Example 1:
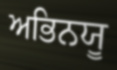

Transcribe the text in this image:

ਅਭਿਨਯੂ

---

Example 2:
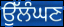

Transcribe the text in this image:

ਉੱਲੰਘਣ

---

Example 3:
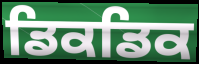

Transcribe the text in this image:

ਡਿਕਡਿਕ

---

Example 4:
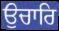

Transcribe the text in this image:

ਉਚਾਰਿ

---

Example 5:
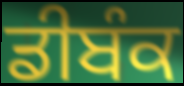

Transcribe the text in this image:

ਡੀਬੰਕ